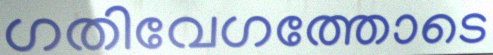
ഗതിവേഗത്തോടെ